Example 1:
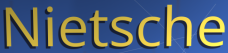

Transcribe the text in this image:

Nietsche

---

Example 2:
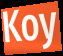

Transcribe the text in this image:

Koy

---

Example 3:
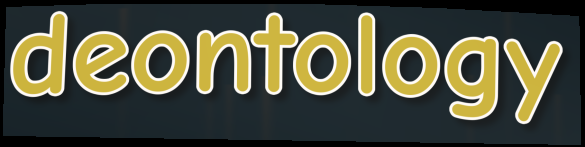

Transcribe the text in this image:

deontology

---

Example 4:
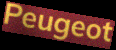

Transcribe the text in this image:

Peugeot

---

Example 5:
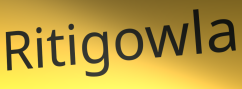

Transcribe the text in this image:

Ritigowla